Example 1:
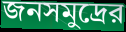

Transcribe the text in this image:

জনসমুদ্রের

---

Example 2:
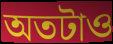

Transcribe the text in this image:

অতটাও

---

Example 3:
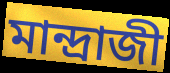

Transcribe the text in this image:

মান্দ্রাজী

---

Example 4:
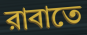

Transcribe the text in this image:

রাবাতে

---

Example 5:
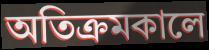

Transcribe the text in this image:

অতিক্রমকালে